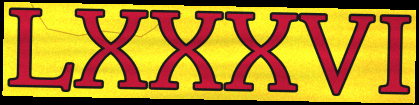
LXXXVI